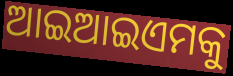
ଆଇଆଇଏମକୁ